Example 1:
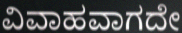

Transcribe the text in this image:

ವಿವಾಹವಾಗದೇ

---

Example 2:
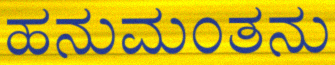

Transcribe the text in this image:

ಹನುಮಂತನು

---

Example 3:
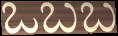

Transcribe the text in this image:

ಒಬಬ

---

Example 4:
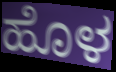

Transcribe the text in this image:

ಹೊಳ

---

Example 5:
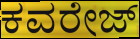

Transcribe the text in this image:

ಕವರೇಜ್